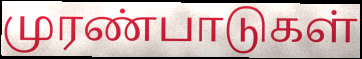
முரண்பாடுகள்